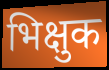
भिक्षुक